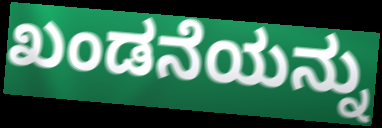
ಖಂಡನೆಯನ್ನು